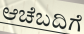
ಆಚೆಬದಿಗೆ